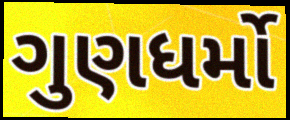
ગુણધર્મો